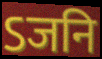
ऽजनि